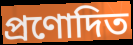
প্ৰণোদিত